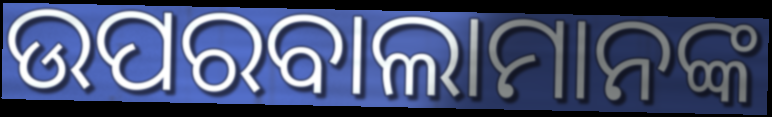
ଉପରବାଲାମାନଙ୍କ